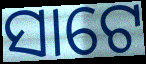
ସାଟେ